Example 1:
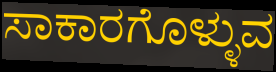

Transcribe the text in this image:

ಸಾಕಾರಗೊಳ್ಳುವ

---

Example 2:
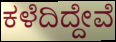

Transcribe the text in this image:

ಕಳೆದಿದ್ದೇವೆ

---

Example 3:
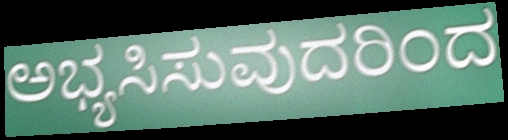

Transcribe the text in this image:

ಅಭ್ಯಸಿಸುವುದರಿಂದ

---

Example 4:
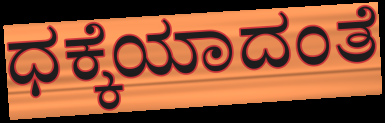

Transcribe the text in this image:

ಧಕ್ಕೆಯಾದಂತೆ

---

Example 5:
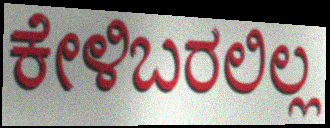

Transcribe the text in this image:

ಕೇಳಿಬರಲಿಲ್ಲ